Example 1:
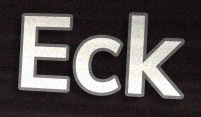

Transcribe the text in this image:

Eck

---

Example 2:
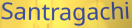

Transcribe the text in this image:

Santragachi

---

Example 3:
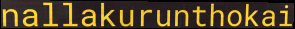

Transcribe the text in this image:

nallakurunthokai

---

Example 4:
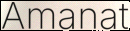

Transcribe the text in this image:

Amanat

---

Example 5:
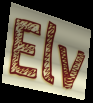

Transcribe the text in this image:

Elv